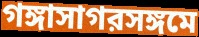
গঙ্গাসাগরসঙ্গমে